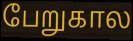
பேறுகால